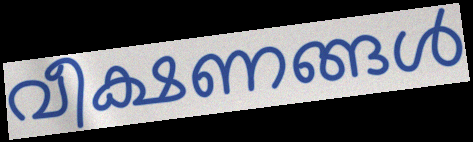
വീക്ഷണങ്ങൾ